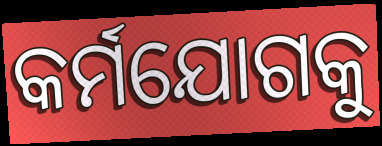
କର୍ମଯୋଗକୁ